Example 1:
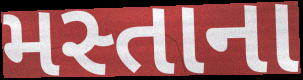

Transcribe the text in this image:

મસ્તાના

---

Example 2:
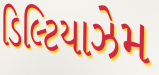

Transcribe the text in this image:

ડિલ્ટિયાઝેમ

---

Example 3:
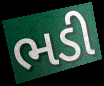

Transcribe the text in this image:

ભડી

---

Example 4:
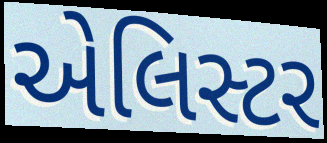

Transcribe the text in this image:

એલિસ્ટર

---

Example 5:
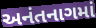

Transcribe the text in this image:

અનંતનાગમાં